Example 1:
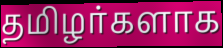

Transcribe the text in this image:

தமிழர்களாக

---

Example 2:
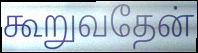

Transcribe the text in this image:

கூறுவதேன்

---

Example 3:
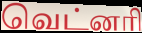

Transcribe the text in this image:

வெட்னரி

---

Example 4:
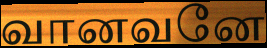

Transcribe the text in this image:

வானவனே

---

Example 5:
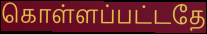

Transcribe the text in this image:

கொள்ளப்பட்டதே